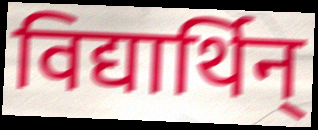
विद्यार्थिन्